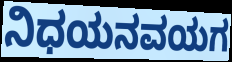
ನಿಧಯನವಯಗ